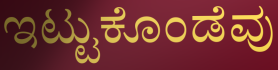
ಇಟ್ಟುಕೊಂಡೆವು